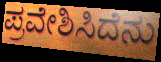
ಪ್ರವೇಶಿಸಿದೆನು